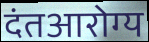
दंतआरोग्य